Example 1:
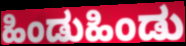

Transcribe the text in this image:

ಹಿಂಡುಹಿಂಡು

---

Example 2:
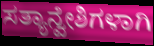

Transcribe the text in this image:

ಸತ್ಯಾನ್ವೇಶಿಗಳಾಗಿ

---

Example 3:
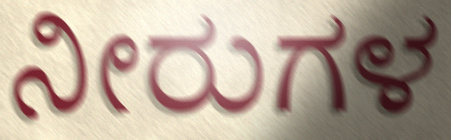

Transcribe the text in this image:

ನೀರುಗಳ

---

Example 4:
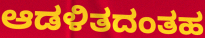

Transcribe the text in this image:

ಆಡಳಿತದಂತಹ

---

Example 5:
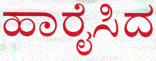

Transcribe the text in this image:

ಹಾರೈಸಿದ